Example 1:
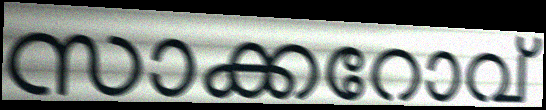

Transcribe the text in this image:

സാക്കറോവ്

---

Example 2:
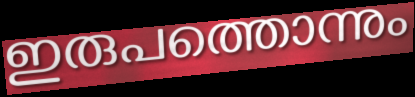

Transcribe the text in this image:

ഇരുപത്തൊന്നും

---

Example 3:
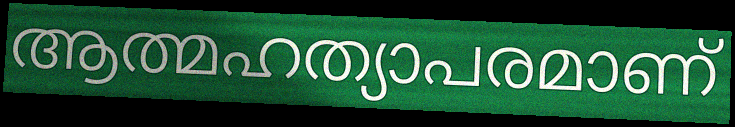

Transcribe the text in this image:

ആത്മഹത്യാപരമാണ്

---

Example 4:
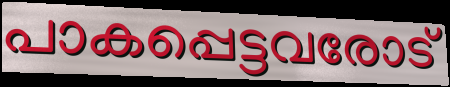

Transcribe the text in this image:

പാകപ്പെട്ടവരോട്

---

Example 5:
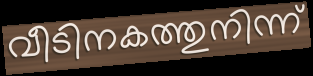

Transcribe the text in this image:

വീടിനകത്തുനിന്ന്